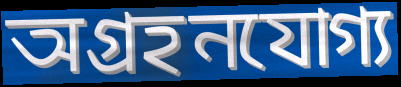
অগ্রহনযোগ্য